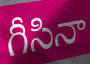
గీసినా